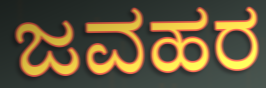
ಜವಹರ